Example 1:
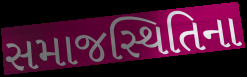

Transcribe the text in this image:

સમાજસ્થિતિના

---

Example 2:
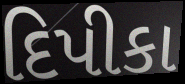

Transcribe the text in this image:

દિપીકા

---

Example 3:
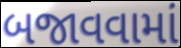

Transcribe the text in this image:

બજાવવામાં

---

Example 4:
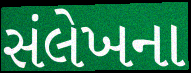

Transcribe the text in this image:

સંલેખના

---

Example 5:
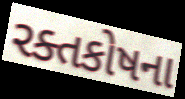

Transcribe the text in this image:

રક્તકોષના